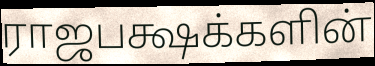
ராஜபக்ஷக்களின்